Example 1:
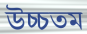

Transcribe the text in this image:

উচ্চতম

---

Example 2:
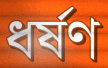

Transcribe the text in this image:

ধৰ্ষণ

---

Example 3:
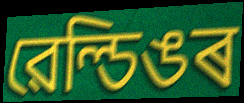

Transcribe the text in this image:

ৱেল্ডিঙৰ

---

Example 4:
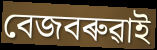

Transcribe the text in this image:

বেজবৰুৱাই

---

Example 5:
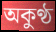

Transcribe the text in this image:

অকুণ্ঠ